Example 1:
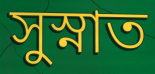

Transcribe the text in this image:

সুস্নাত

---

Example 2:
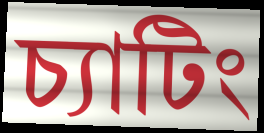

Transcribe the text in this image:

চ্যাটিং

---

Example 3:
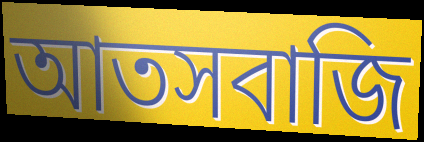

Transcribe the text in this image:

আতসবাজি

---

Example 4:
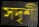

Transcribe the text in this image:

সদৃশী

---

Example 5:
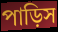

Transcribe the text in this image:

পাড়িস